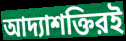
আদ্যাশক্তিরই